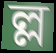
ল্ল